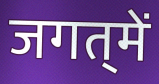
जगत्‌में